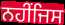
ਨਹੀਂਜਿਸ